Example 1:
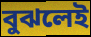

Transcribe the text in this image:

বুঝলেই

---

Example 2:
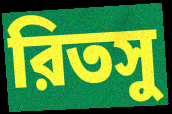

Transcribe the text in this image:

রিতসু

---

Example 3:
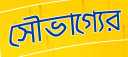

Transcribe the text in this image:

সৌভাগ্যের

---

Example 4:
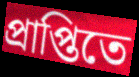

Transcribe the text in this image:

প্রাপ্তিতে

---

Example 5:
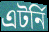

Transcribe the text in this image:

এটর্নি